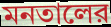
মনতালের